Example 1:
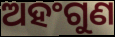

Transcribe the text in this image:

ଅହଂଗୁଣ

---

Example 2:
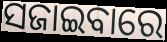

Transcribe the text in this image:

ସଜାଇବାରେ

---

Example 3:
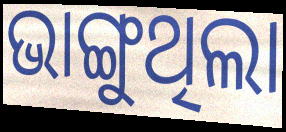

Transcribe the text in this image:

ଭାଙ୍ଗୁଥିଲା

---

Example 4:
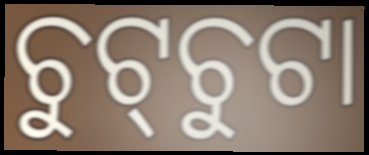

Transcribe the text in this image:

ଚୁଟ୍‌ଚୁଟା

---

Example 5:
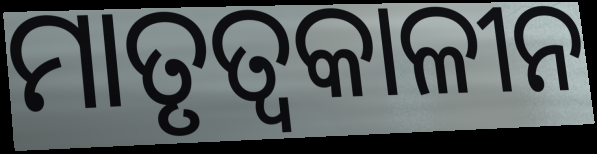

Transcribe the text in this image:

ମାତୃତ୍ୱକାଳୀନ